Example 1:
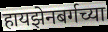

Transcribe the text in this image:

हायझेनबर्गच्या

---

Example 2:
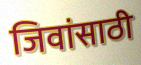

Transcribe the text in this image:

जिवांसाठी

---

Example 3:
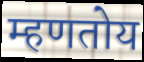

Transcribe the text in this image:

म्हणतोय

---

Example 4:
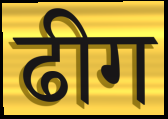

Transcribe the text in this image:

ढीग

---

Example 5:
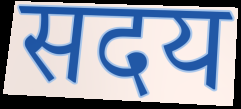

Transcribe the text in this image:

सदय